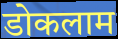
डोकलाम